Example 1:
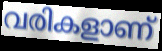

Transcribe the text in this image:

വരികളാണ്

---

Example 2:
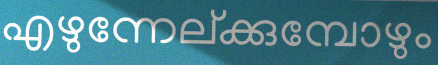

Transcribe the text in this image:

എഴുന്നേല്ക്കുമ്പോഴും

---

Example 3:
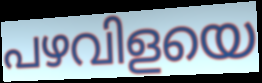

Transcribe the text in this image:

പഴവിളയെ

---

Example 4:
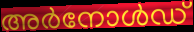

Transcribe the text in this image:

അർനോൾഡ്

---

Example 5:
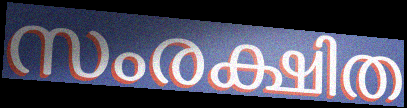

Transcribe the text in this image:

സംരക്ഷിത